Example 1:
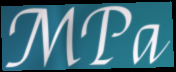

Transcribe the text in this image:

MPa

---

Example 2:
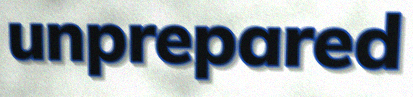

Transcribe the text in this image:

unprepared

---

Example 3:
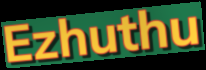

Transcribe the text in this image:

Ezhuthu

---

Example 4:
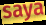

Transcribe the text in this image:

saya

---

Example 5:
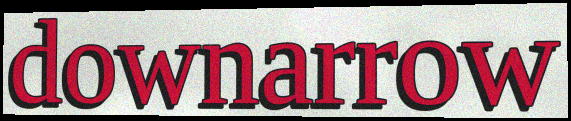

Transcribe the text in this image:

downarrow